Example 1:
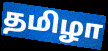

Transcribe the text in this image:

தமிழா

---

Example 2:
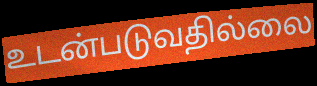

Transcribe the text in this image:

உடன்படுவதில்லை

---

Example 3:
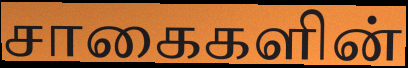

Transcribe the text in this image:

சாகைகளின்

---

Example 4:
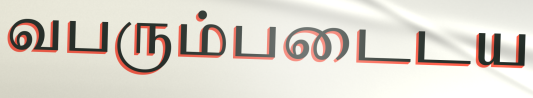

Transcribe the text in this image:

வபரும்படைடய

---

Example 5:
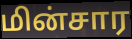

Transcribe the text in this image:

மின்சார